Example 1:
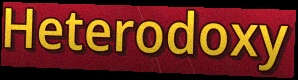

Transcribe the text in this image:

Heterodoxy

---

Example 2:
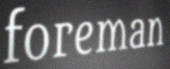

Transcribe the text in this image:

foreman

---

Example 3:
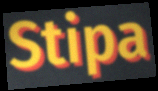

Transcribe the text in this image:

Stipa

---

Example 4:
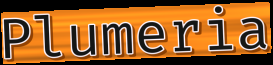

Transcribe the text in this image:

Plumeria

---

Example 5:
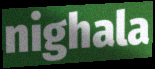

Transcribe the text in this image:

nighala